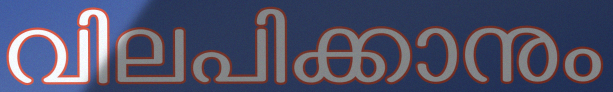
വിലപിക്കാനും